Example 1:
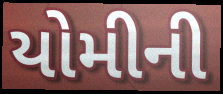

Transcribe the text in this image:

યોમીની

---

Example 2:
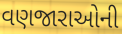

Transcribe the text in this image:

વણજારાઓની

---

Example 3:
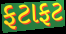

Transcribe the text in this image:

ફટાફટ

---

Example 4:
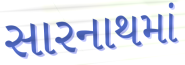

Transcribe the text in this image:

સારનાથમાં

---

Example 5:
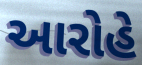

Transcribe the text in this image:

આરોહે